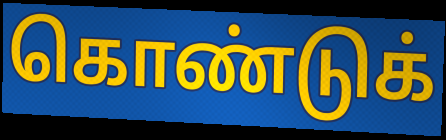
கொண்டுக்